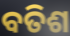
ବତିଶ